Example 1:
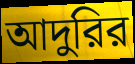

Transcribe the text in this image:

আদুরির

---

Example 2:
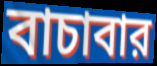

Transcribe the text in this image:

বাচাবার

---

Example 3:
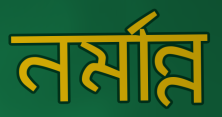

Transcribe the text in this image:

নর্মান্ন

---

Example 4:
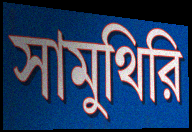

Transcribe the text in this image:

সামুথিরি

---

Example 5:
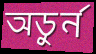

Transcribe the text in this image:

অডুর্ন